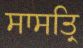
ਸਾਸਤ੍ਰਿ